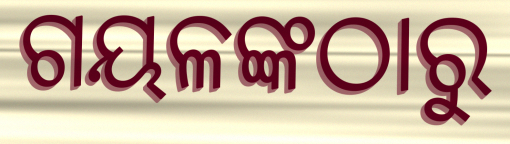
ଗୟଳଙ୍କଠାରୁ